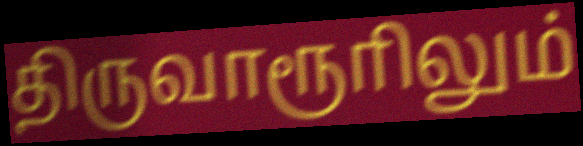
திருவாரூரிலும்